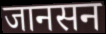
जानसन